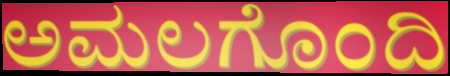
ಅಮಲಗೊಂದಿ